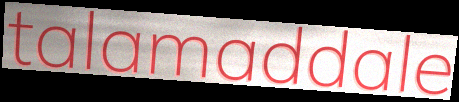
talamaddale